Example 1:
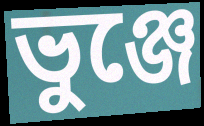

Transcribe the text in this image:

ভুঞ্জে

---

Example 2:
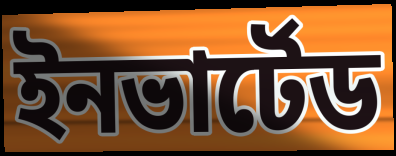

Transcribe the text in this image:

ইনভার্টেড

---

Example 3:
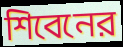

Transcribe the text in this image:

শিবেনের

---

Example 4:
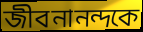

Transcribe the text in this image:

জীবনানন্দকে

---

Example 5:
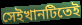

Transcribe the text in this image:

সেইখানটিতেই